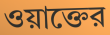
ওয়াক্তের